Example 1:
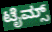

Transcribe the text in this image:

ಟೈಮ್ಸ್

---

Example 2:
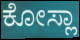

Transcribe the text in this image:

ಕೋಸ್ಲಾ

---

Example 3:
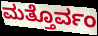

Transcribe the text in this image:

ಮತ್ತೊರ್ವಂ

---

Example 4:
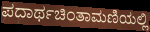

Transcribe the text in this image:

ಪದಾರ್ಥಚಿಂತಾಮಣಿಯಲ್ಲಿ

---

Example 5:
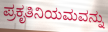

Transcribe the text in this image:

ಪ್ರಕೃತಿನಿಯಮವನ್ನು